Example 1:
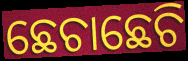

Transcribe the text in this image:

ଛେଚାଛେଚି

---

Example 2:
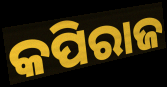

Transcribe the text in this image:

କପିରାଜ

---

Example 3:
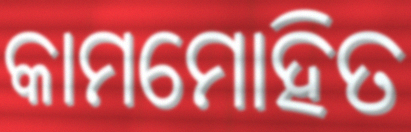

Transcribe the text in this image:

କାମମୋହିତ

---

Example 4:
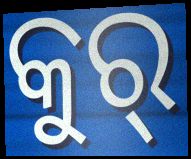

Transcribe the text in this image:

କୁର୍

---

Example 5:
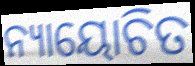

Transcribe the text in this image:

ନ୍ୟାୟୋଚିତ